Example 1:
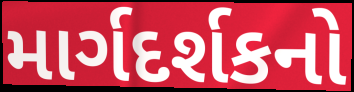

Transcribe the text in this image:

માર્ગદર્શકનો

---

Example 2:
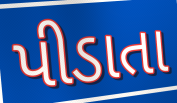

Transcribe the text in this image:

પીડાતા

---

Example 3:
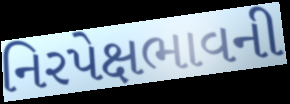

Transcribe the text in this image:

નિરપેક્ષભાવની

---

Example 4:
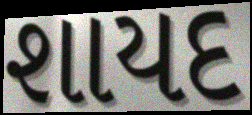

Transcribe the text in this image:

શાયદ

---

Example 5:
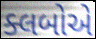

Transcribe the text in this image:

ક્લબોએ